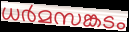
ധർമസങ്കടം